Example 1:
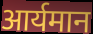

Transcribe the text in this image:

आर्यमान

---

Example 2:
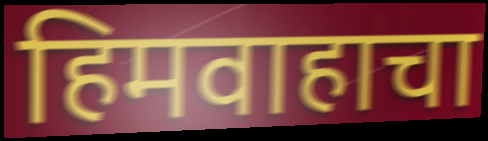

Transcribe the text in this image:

हिमवाहाचा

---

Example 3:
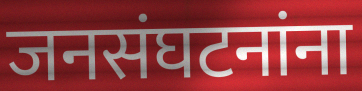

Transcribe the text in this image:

जनसंघटनांना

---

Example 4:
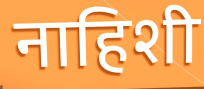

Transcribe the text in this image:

नाहिशी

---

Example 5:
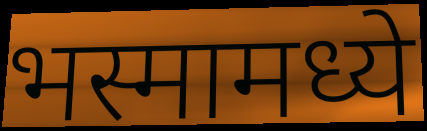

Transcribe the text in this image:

भस्मामध्ये